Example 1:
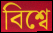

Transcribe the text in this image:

বিশ্বে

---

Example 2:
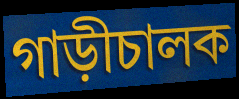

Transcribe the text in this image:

গাড়ীচালক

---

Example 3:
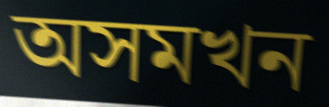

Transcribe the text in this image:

অসমখন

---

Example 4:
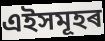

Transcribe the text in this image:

এইসমূহৰ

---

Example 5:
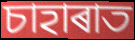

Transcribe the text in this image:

চাহাৰাত